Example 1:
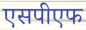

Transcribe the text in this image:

एसपीएफ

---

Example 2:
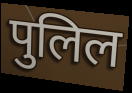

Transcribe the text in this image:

पुलिल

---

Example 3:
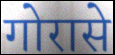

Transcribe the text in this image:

गोरासे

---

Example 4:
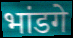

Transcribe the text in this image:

भांडगे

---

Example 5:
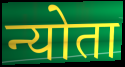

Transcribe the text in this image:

न्योता